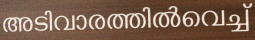
അടിവാരത്തിൽവെച്ച്